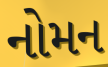
નોમન